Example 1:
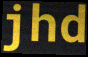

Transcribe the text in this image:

jhd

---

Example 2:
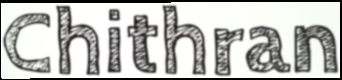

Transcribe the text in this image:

Chithran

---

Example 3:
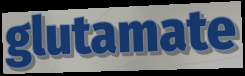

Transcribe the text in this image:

glutamate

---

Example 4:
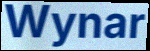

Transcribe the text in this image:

Wynar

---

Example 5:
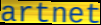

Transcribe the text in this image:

artnet